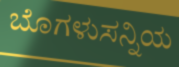
ಬೊಗಳುಸನ್ನಿಯ